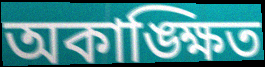
অকাঙ্ক্ষিত